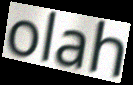
olah